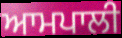
ਆਮਪਾਲੀ